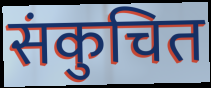
संकुचित